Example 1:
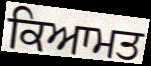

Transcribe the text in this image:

ਕਿਆਮਤ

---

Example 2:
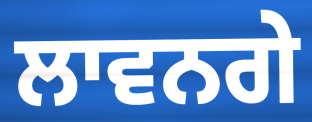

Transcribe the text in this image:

ਲਾਵਨਗੇ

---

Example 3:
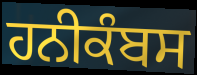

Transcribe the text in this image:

ਹਨੀਕੰਬਸ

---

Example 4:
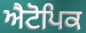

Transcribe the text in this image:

ਐਟੋਪਿਕ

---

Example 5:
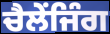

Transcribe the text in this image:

ਚੈਲੇਂਜਿੰਗ